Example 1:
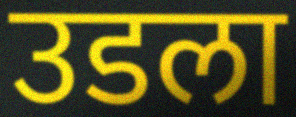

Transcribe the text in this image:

उडला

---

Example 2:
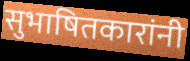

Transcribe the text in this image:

सुभाषितकारांनी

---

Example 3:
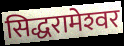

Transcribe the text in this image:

सिद्धरामेश्‍वर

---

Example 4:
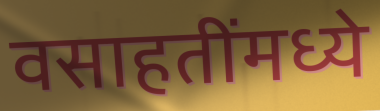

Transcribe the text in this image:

वसाहतींमध्ये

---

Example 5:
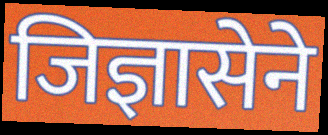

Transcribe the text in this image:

जिज्ञासेने